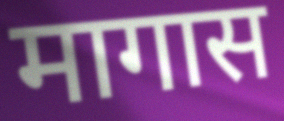
मागास